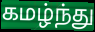
கமழ்ந்து